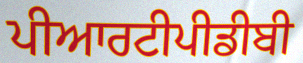
ਪੀਆਰਟੀਪੀਡੀਬੀ